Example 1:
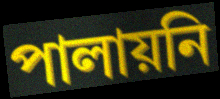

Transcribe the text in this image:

পালায়নি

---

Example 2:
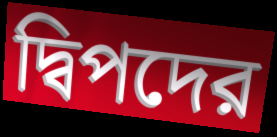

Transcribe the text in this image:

দ্বিপদের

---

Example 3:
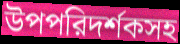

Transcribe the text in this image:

উপপরিদর্শকসহ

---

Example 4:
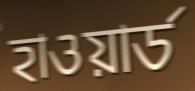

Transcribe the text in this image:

হাওয়ার্ড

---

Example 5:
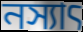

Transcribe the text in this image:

নস্যাৎ